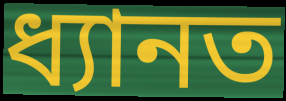
ধ্যানত